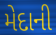
મેદાની